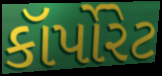
કૉર્પોરેટ